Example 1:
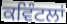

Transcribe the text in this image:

ਕਵਿੰਟਲਾਂ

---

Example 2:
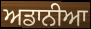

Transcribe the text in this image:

ਅਡਾਨੀਆ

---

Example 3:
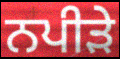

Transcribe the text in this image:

ਨਪੀੜੇ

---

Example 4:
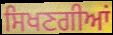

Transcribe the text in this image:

ਸਿਖਣਗੀਆਂ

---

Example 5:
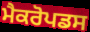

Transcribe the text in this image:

ਮੈਕਰੋਪਡਸ